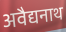
अवैद्यनाथ